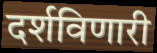
दर्शविणारी